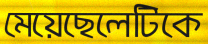
মেয়েছেলেটিকে